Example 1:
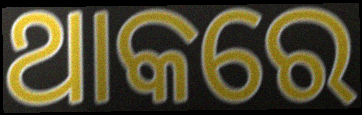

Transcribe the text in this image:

ଥାକରେ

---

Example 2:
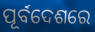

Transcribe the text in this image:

ପୂର୍ବଦେଶରେ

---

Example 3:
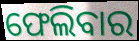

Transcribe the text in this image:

ଫେଲିବାର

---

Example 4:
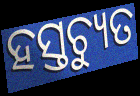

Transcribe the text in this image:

ହସ୍ତଚ୍ୟୁତ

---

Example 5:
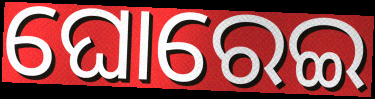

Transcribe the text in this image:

ଘୋରେଇ